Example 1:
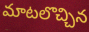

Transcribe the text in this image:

మాటలొచ్చిన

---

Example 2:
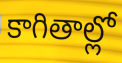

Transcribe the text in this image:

కాగితాల్లో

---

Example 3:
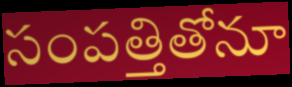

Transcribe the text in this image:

సంపత్తితోనూ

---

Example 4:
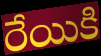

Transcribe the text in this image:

రేయికి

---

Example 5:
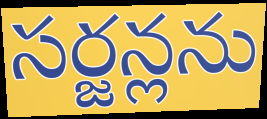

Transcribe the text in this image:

సర్జన్లను